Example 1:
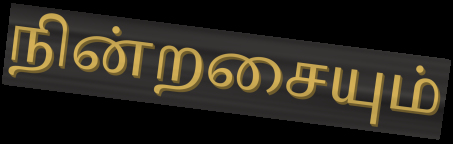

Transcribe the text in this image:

நின்றசையும்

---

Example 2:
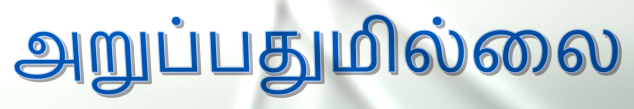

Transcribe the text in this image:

அறுப்பதுமில்லை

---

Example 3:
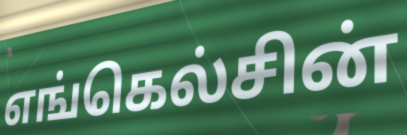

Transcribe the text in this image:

எங்கெல்சின்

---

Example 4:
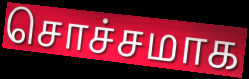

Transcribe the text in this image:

சொச்சமாக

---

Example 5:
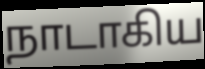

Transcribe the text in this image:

நாடாகிய